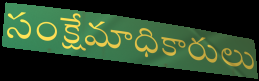
సంక్షేమాధికారులు